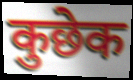
कुछेक